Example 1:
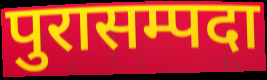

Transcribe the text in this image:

पुरासम्पदा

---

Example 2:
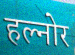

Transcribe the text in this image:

हल्नोर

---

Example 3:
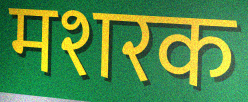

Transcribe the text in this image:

मशरक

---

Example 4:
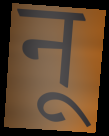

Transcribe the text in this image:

नू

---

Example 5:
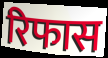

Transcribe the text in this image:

रिफास